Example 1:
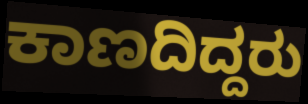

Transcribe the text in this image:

ಕಾಣದಿದ್ದರು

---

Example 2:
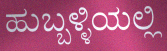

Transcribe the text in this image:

ಹುಬ್ಬಳ್ಳಿಯಲ್ಲಿ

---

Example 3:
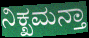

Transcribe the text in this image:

ನಿಕ್ಖಮನ್ತಾ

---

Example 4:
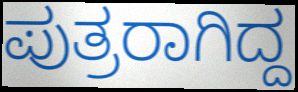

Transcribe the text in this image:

ಪುತ್ರರಾಗಿದ್ದ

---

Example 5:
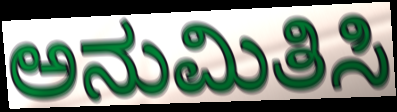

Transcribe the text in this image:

ಅನುಮಿತಿಸಿ